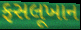
ફસલૂખાન